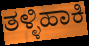
ತಳ್ಳಿಹಾಕಿ